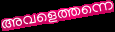
അവളെത്തന്നെ